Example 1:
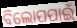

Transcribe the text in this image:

ବିଲୋପପାଇଁ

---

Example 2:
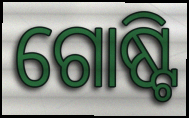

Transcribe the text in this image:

ଗୋଷ୍ଟି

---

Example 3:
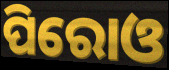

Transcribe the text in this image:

ପିରୋଓ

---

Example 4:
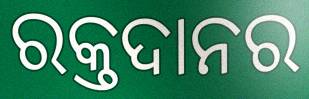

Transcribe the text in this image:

ରକ୍ତଦାନର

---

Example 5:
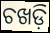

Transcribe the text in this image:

ଚଖଡ଼ି